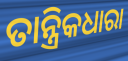
ତାନ୍ତ୍ରିକଧାରା